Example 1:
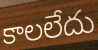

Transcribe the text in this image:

కాలలేదు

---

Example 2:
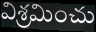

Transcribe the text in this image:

విశ్రమించు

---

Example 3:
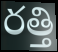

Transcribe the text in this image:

రత్తి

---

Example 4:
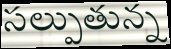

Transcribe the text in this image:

సల్పుతున్న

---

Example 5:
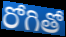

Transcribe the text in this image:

రోగితో